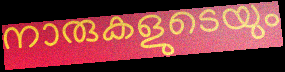
നാരുകളുടെയും